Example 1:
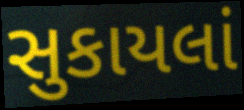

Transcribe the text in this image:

સુકાયલાં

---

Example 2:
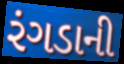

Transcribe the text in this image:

રંગડાની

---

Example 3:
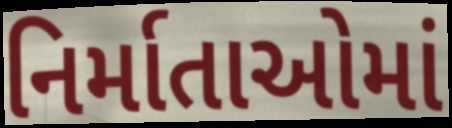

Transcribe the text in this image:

નિર્માતાઓમાં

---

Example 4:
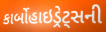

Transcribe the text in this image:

કાર્બોહાઇડ્રેટ્સની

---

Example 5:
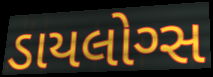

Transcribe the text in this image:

ડાયલોગ્સ